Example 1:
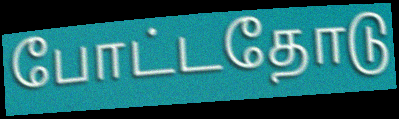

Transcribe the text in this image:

போட்டதோடு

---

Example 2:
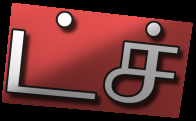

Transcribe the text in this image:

ட்ச்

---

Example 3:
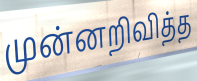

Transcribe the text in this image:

முன்னறிவித்த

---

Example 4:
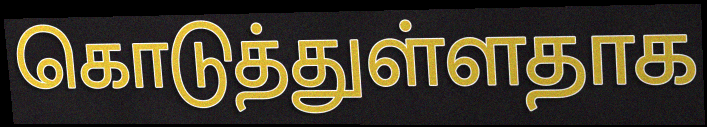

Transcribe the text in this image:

கொடுத்துள்ளதாக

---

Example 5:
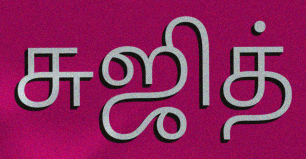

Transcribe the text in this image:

சுஜித்